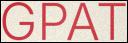
GPAT